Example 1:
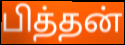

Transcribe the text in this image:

பித்தன்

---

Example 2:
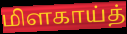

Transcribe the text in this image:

மிளகாய்த்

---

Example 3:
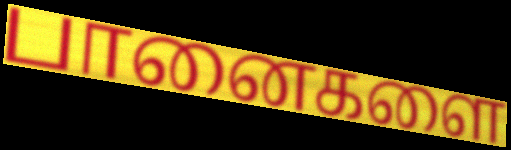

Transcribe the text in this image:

பானைகளை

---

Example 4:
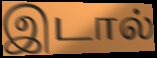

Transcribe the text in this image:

இடால்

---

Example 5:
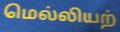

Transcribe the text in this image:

மெல்லியற்